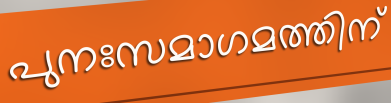
പുനഃസമാഗമത്തിന്